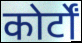
कोर्टों